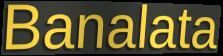
Banalata